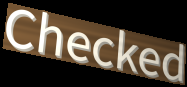
Checked